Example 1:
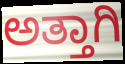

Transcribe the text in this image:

ಅತ್ತಾಗಿ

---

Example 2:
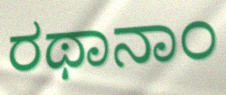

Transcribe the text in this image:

ರಥಾನಾಂ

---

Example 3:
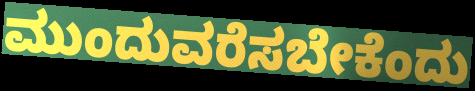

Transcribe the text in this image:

ಮುಂದುವರೆಸಬೇಕೆಂದು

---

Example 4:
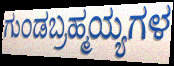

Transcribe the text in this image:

ಗುಂಡಬ್ರಹ್ಮಯ್ಯಗಳ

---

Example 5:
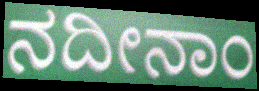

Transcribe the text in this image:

ನದೀನಾಂ